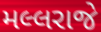
મલ્લરાજે